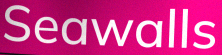
Seawalls